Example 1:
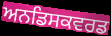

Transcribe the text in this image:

ਅਨਡਿਸਕਵਰਡ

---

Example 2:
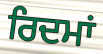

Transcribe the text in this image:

ਰਿਦਮਾਂ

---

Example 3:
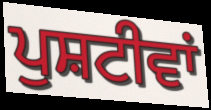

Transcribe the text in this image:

ਪੁਸ਼ਟੀਵਾਂ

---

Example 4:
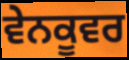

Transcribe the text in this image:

ਵੇਨਕੂਵਰ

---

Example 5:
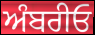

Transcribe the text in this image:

ਅੰਬਰੀਓ